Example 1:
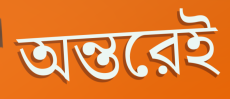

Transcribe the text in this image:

অন্তরেই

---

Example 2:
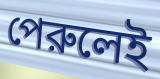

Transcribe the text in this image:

পেরুলেই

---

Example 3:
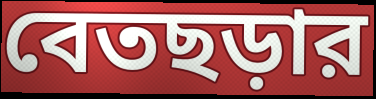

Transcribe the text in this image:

বেতছড়ার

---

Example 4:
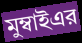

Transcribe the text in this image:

মুম্বাইএর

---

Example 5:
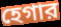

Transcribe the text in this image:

হেগার